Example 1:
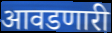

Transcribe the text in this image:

आवडणारी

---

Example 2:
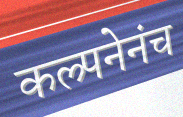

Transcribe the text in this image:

कल्पनेनंच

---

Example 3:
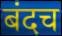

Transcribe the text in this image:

बंदच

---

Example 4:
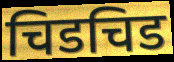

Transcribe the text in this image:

चिडचिड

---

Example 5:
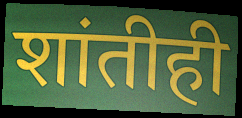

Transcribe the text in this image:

शांतीही